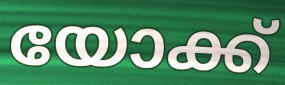
യോക്ക്